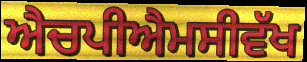
ਐਚਪੀਐਮਸੀਵੱਖ